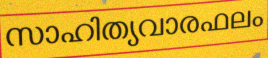
സാഹിത്യവാരഫലം